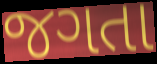
જગતા